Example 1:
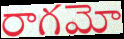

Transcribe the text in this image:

రాగమో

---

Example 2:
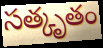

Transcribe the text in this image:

సత్కృతం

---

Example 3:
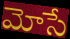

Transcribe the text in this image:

మోసే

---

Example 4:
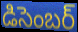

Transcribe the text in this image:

డిసెంబర్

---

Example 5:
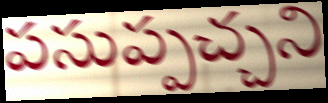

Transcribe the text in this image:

పసుప్పచ్చని